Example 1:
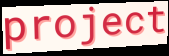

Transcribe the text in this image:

project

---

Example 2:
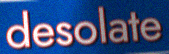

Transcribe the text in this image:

desolate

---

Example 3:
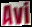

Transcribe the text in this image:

Avi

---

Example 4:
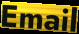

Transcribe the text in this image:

Email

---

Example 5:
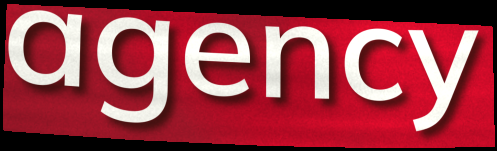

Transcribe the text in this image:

agency